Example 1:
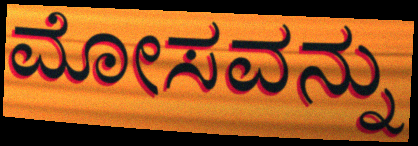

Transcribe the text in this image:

ಮೋಸವನ್ನು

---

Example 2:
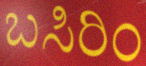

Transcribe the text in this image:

ಬಸಿರಿಂ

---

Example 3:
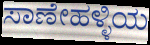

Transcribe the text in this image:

ಸಾಣೇಹಳ್ಳಿಯ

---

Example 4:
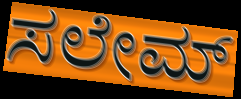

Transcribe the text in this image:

ಸಲೇಮ್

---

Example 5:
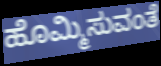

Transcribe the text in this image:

ಹೊಮ್ಮಿಸುವಂತೆ